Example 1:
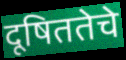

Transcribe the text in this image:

दूषिततेचे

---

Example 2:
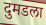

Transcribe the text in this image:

दुमडला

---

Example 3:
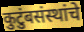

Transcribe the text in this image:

कुटुंबसंस्थांचे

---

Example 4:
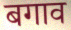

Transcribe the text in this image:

बगाव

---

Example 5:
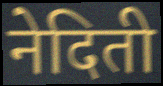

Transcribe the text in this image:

नेदिती